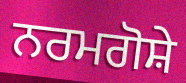
ਨਰਮਗੋਸ਼ੇ